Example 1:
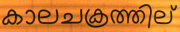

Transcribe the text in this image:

കാലചക്രത്തില്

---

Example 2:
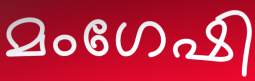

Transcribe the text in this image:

മംഗേഷി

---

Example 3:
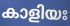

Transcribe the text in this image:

കാളിയഃ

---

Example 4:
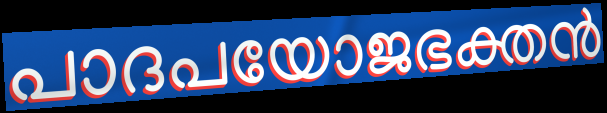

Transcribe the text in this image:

പാദപയോജഭക്തൻ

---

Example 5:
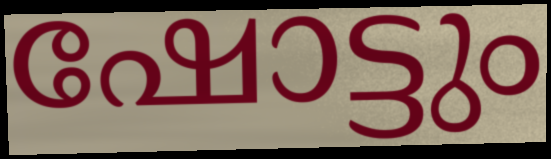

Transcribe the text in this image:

ഷോട്ടും